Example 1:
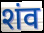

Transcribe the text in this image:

शंव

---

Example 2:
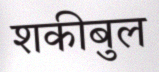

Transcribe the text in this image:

शकीबुल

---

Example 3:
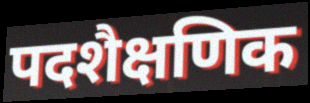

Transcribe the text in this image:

पदशैक्षणिक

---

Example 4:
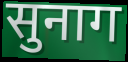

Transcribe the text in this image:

सुनाग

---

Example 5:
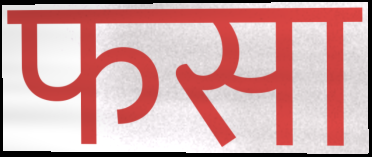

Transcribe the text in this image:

फसा